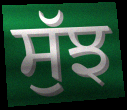
ਸੁੱਝ